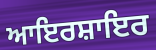
ਆਇਰਸ਼ਾਇਰ